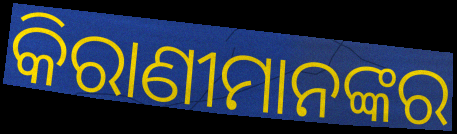
କିରାଣୀମାନଙ୍କର